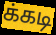
க்கடி